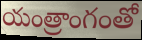
యంత్రాంగంతో